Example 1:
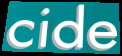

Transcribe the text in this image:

cide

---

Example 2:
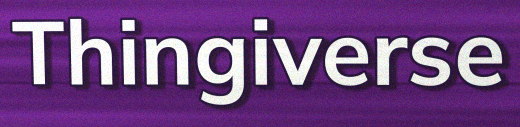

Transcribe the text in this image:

Thingiverse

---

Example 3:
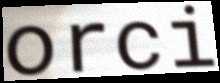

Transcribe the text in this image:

orci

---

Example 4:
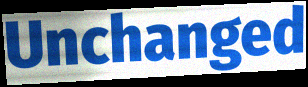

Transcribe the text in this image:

Unchanged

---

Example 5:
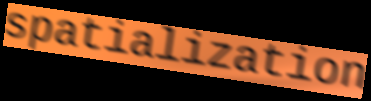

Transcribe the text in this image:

spatialization